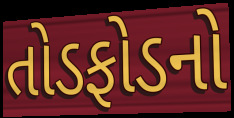
તોડફોડનો